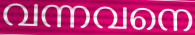
വന്നവനെ